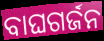
ବାଘଗର୍ଜନ